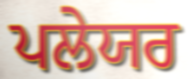
ਪਲੇਯਰ